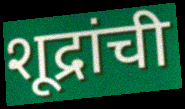
शूद्रांची